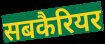
सबकैरियर